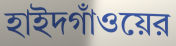
হাইদগাঁওয়ের